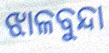
ଝାଳବୁନ୍ଦା